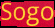
Sogo